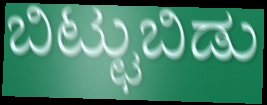
ಬಿಟ್ಟುಬಿಡು